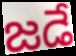
జడే